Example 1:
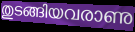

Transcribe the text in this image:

തുടങ്ങിയവരാണു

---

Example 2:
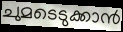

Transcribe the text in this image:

ചുമടെടുക്കാൻ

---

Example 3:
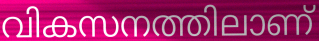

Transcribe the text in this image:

വികസനത്തിലാണ്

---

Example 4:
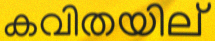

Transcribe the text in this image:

കവിതയില്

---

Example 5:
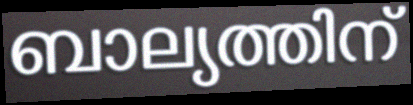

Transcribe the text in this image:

ബാല്യത്തിന്